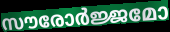
സൗരോർജ്ജമോ